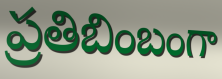
ప్రతిబింబంగా